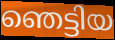
ഞെട്ടിയ